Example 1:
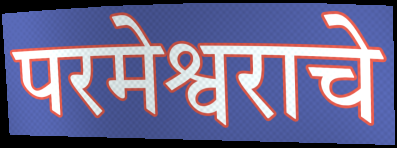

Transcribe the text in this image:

परमेश्वराचे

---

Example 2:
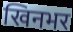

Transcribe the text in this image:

खिनभर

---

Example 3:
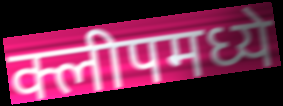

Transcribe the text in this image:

क्लीपमध्ये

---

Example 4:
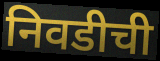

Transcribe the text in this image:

निवडीची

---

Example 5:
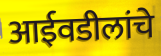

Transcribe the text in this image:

आईवडीलांचे